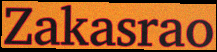
Zakasrao